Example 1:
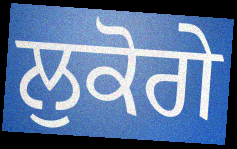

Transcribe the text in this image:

ਲੁਕੋਗੇ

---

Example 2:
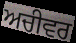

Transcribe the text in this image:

ਅਚੀਵਰ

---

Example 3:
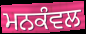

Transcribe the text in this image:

ਮਨਕੰਵਲ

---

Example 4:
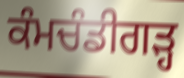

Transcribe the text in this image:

ਕੰਮਚੰਡੀਗੜ੍ਹ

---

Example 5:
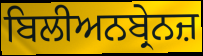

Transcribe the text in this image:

ਬਿਲੀਅਨਬ੍ਰੇਨਜ਼